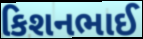
કિશનભાઈ